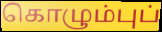
கொழும்புப்